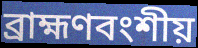
ব্রাহ্মণবংশীয়